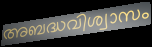
അബദ്ധവിശ്വാസം